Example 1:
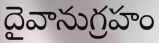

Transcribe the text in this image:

దైవానుగ్రహం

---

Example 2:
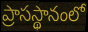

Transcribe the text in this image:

ప్రాసస్థానంలో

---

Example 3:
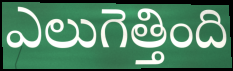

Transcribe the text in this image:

ఎలుగెత్తింది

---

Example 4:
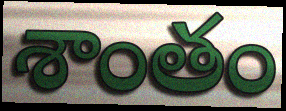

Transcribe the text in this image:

శాంతం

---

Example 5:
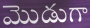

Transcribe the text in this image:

మొడుగా